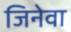
जिनेवा